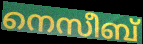
നെസീബ്